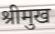
श्रीमुख